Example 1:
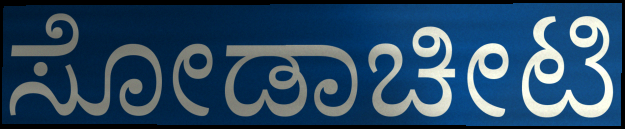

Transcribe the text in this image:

ಸೋಡಾಚೀಟಿ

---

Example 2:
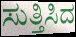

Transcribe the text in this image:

ಸುತ್ತಿಸಿದ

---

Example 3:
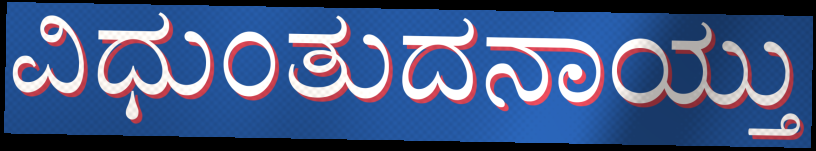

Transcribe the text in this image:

ವಿಧುಂತುದನಾಯ್ತು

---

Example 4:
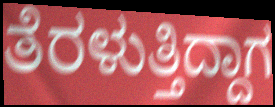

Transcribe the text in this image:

ತೆರಳುತ್ತಿದ್ದಾಗ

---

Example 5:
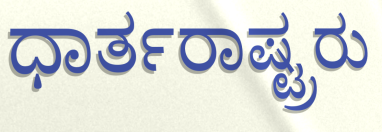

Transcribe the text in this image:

ಧಾರ್ತರಾಷ್ಟ್ರರು